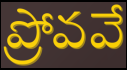
ప్రోవవే